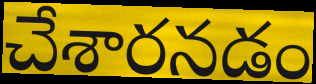
చేశారనడం